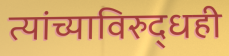
त्यांच्याविरुद्धही